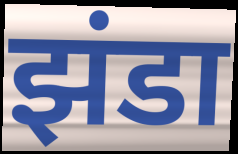
झंडा